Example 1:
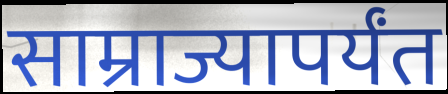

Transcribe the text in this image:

साम्राज्यापर्यंत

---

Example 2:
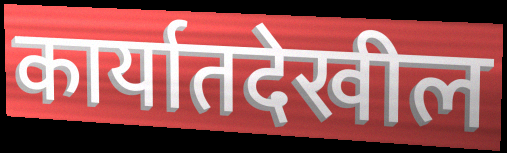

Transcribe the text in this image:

कार्यातदेखील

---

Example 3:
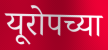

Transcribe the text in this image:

यूरोपच्या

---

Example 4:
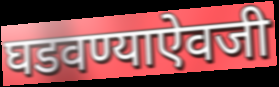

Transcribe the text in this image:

घडवण्याऐवजी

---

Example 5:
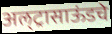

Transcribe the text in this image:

अल्ट्रासाऊंडचे